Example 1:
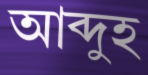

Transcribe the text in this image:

আব্দুহ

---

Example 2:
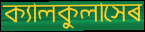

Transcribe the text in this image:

ক্যালকুলাসেৰ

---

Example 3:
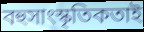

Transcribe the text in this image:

বহুসাংস্কৃতিকতাই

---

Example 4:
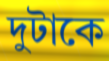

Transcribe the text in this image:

দুটাকে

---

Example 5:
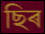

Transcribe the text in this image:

ছিৰ